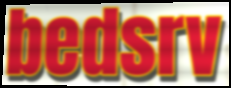
bedsrv